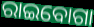
ରାଇବୋଗା